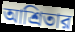
আশ্রিতার